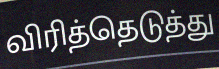
விரித்தெடுத்து